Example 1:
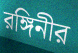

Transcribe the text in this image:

রঙ্গিনীর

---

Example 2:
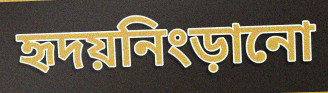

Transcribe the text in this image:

হৃদয়নিংড়ানো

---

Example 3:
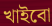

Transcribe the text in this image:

খাইবো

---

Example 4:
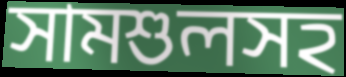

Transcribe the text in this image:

সামশুলসহ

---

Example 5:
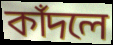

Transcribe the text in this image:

কাঁদলে